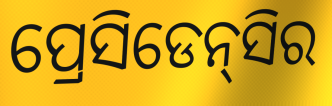
ପ୍ରେସିଡେନ୍‌ସିର